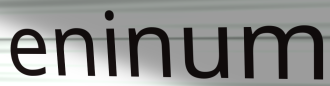
eninum